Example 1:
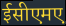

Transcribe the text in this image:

ईसीएमए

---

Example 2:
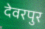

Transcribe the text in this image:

देवरपुर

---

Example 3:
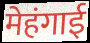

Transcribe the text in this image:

मेहंगाई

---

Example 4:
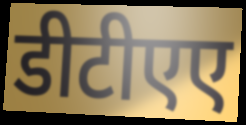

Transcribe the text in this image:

डीटीएए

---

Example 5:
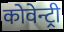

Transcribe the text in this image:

कोवेन्ट्री